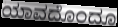
ಯಾವದೊಂದೂ